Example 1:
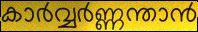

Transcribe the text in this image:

കാർവ്വർണ്ണന്താൻ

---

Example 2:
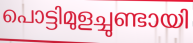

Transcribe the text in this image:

പൊട്ടിമുളച്ചുണ്ടായി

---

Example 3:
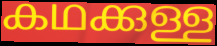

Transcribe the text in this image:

കഥക്കുള്ള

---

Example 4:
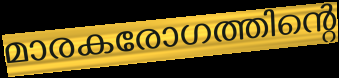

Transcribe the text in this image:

മാരകരോഗത്തിന്റെ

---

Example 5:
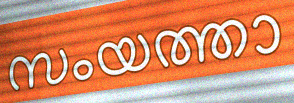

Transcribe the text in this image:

സംയത്താ